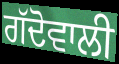
ਗੱਦੋਵਾਲੀ